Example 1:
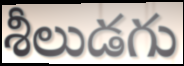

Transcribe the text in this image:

శీలుడగు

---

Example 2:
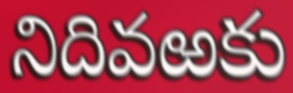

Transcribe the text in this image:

నిదివఱకు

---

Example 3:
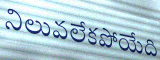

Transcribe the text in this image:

నిలువలేకపోయేది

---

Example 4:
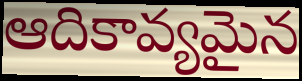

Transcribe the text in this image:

ఆదికావ్యమైన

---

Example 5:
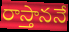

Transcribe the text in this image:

రాస్తాననే